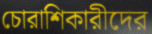
চোরাশিকারীদের